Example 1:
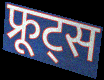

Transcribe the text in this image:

फ्रूट्स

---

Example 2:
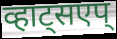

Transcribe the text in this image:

व्हाट्सएप्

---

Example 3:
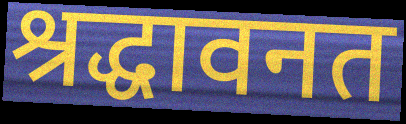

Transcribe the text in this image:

श्रद्धावनत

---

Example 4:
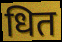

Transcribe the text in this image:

धित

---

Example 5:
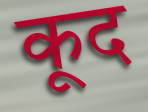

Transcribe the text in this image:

कूद